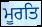
ਮੂਰਤਿ